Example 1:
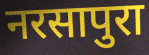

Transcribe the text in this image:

नरसापुरा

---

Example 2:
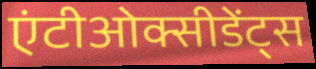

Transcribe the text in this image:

एंटीओक्सीडेंट्स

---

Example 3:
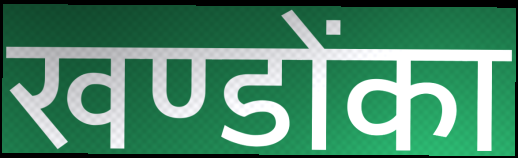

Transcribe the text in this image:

खण्डोंका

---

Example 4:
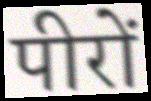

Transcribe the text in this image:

पीरों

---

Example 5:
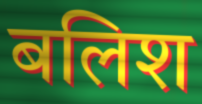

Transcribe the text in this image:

बलिश